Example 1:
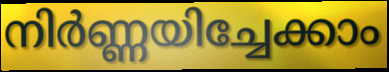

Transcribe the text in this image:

നിർണ്ണയിച്ചേക്കാം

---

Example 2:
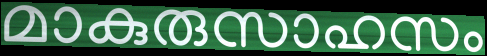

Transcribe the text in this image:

മാകുരുസാഹസം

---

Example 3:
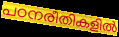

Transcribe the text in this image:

പഠനരീതികളിൽ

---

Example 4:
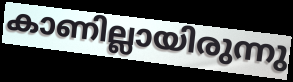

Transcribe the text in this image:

കാണില്ലായിരുന്നു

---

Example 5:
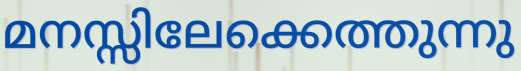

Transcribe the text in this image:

മനസ്സിലേക്കെത്തുന്നു